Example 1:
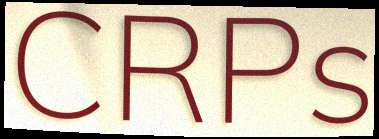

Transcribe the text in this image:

CRPs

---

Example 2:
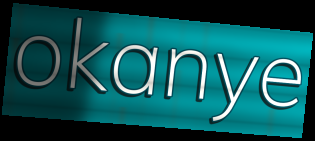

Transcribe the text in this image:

okanye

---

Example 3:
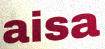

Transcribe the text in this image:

aisa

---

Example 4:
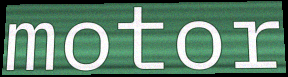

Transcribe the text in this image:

motor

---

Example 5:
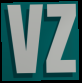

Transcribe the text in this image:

VZ